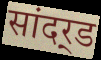
सांदर्ड